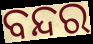
ବନ୍ଦର